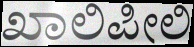
ಖಾಲಿಪೀಲಿ